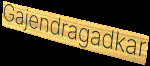
Gajendragadkar